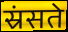
स्रंसते